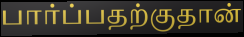
பார்ப்பதற்குதான்